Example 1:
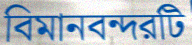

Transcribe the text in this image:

বিমানবন্দরটি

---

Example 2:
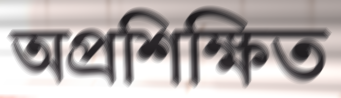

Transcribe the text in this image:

অপ্রশিক্ষিত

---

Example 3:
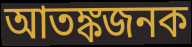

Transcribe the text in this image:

আতঙ্কজনক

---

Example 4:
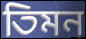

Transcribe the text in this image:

তিমন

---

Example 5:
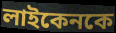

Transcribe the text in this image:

লাইকেনকে